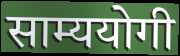
साम्ययोगी